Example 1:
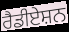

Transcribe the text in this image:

ਰੈਡੀਏਸ਼ਨ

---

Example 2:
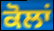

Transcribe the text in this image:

ਕੋਲਾਂ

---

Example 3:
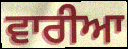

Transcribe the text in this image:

ਵਾਰੀਆ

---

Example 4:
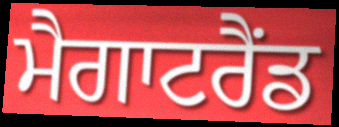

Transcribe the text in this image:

ਮੈਗਾਟਰੈਂਡ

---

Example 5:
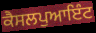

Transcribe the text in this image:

ਕੈਸਲਪੁਆਇੰਟ